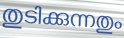
തുടിക്കുന്നതും